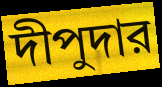
দীপুদার